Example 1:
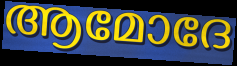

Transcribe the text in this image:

ആമോദേ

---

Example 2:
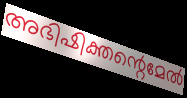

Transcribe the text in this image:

അഭിഷിക്തന്റെമേൽ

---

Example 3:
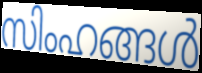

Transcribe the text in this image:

സിംഹങ്ങൾ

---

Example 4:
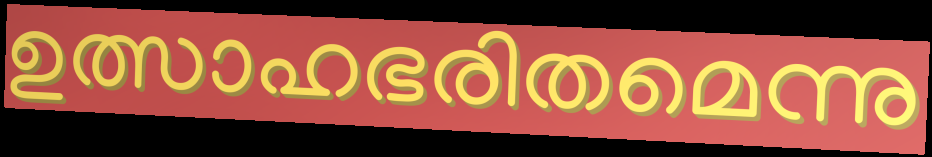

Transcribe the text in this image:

ഉത്സാഹഭരിതമെന്നു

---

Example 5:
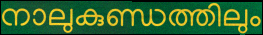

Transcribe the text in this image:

നാലുകുണ്ഡത്തിലും